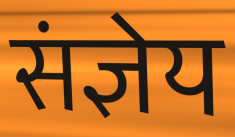
संज्ञेय